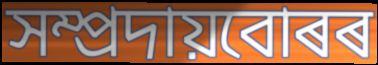
সম্প্ৰদায়বোৰৰ